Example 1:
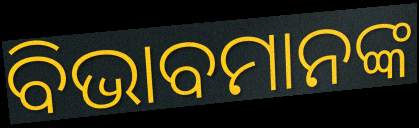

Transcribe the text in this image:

ବିଭାବମାନଙ୍କ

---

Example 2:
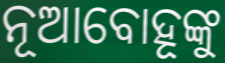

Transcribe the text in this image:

ନୂଆବୋହୂଙ୍କୁ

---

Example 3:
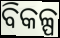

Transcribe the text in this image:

ବିକଳ୍ପ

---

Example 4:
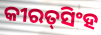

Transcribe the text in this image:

କୀରତ୍‍ସିଂହ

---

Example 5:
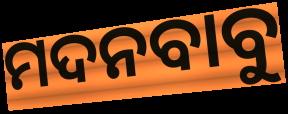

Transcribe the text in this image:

ମଦନବାବୁ